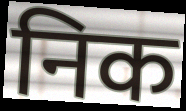
निक